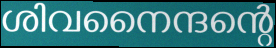
ശിവനൈന്ദന്റെ